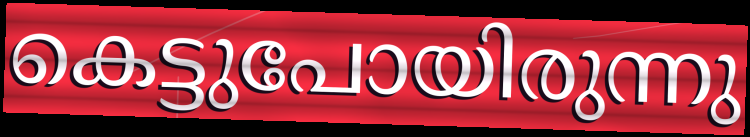
കെട്ടുപോയിരുന്നു